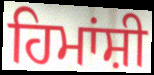
ਹਿਮਾਂਸ਼ੀ